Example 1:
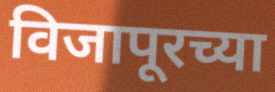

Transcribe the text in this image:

विजापूरच्या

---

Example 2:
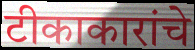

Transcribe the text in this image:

टीकाकारांचे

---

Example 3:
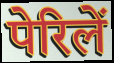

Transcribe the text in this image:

पेरिलें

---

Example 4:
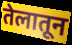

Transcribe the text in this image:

तेलातून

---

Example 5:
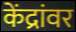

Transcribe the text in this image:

केंद्रांवर